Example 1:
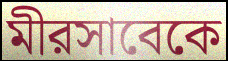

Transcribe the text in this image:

মীরসাবেকে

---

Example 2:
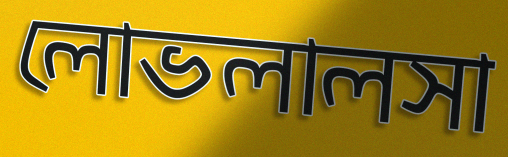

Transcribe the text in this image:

লোভলালসা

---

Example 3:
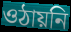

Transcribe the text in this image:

ওঠায়নি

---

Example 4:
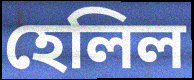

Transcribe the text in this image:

হেলিল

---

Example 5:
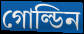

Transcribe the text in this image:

গোল্ডিন